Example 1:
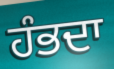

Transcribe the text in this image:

ਹੰਭਦਾ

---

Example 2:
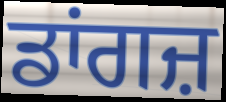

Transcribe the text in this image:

ਡਾਂਗਜ਼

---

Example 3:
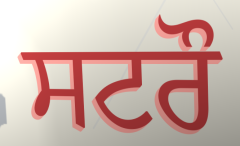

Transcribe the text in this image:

ਸਟਰੌ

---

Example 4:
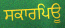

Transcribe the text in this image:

ਸਕਾਰਪਿਊ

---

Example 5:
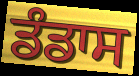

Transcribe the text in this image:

ਡੰਡਾਸ